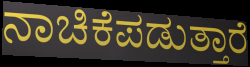
ನಾಚಿಕೆಪಡುತ್ತಾರೆ